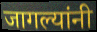
जागल्यांनी